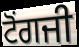
ਟੋਂਗਜੀ